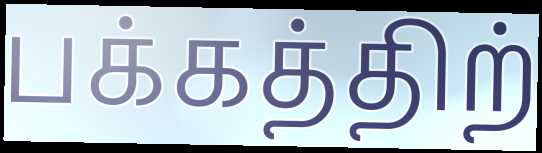
பக்கத்திற்